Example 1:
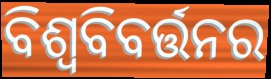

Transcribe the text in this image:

ବିଶ୍ଵବିବର୍ତ୍ତନର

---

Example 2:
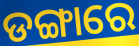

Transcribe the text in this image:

ଡଙ୍ଗାରେ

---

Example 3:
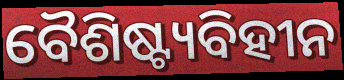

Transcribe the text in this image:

ବୈଶିଷ୍ଟ୍ୟବିହୀନ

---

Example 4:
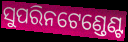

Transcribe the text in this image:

ସୁପରିନଟେଣ୍ଡେଣ୍ଟ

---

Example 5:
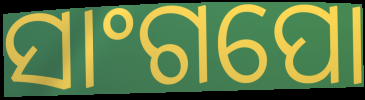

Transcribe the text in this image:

ସାଂଗପୋ